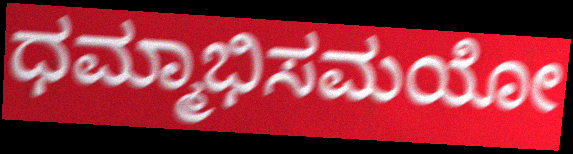
ಧಮ್ಮಾಭಿಸಮಯೋ